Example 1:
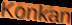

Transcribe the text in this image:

Konkan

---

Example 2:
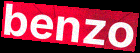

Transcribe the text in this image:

benzo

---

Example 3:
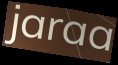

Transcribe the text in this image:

jaraa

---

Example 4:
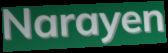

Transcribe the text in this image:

Narayen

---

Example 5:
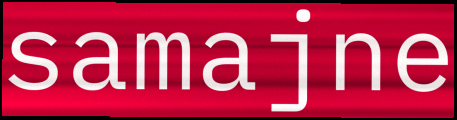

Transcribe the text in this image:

samajne